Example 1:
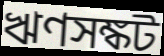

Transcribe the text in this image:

ঋণসঙ্কট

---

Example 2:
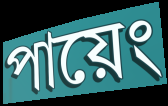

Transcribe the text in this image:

পায়েং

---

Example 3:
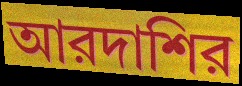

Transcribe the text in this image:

আরদাশির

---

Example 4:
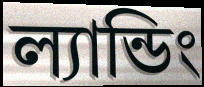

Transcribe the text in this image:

ল্যান্ডিং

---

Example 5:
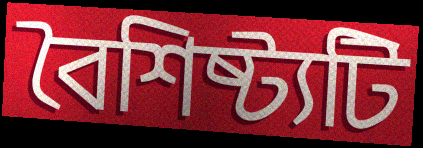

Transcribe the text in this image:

বৈশিষ্ট্যটি